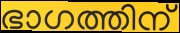
ഭാഗത്തിന്